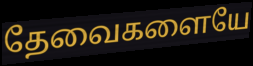
தேவைகளையே